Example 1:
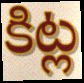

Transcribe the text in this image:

కిట్ల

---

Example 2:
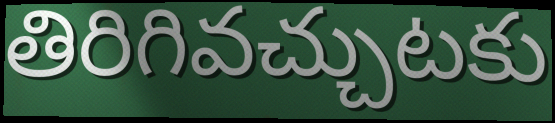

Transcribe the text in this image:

తిరిగివచ్చుటకు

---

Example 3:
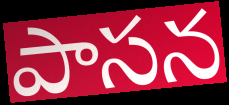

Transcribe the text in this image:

పాసన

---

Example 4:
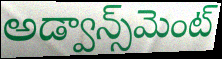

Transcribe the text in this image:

అడ్వాన్స్‌మెంట్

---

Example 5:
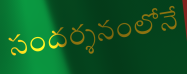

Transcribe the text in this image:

సందర్శనంలోనే